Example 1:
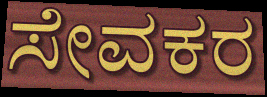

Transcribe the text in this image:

ಸೇವಕರ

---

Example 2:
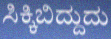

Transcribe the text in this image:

ಸಿಕ್ಕಿಬಿದ್ದುದು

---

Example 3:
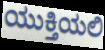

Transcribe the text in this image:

ಯುಕ್ತಿಯಲಿ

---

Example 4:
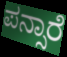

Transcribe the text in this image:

ಪನ್ಸಾರೆ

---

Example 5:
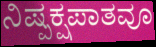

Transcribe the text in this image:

ನಿಷ್ಪಕ್ಷಪಾತವೂ